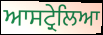
ਆਸਟ੍ਰੇਲਿਆ